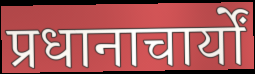
प्रधानाचार्यों